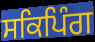
ਸਕਿਪਿੰਗ